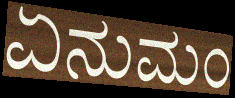
ಏನುಮಂ